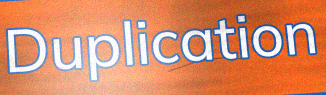
Duplication